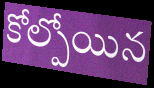
కోల్పోయిన